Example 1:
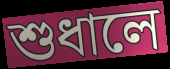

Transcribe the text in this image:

শুধালে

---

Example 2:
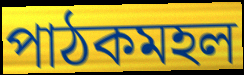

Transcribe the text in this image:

পাঠকমহল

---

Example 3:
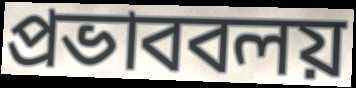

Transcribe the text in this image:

প্রভাববলয়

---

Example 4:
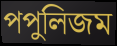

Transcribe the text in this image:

পপুলিজম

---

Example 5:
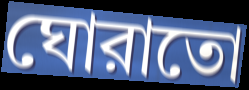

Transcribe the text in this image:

ঘোরাতো